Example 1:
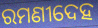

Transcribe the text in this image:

ରମଣୀଦେହ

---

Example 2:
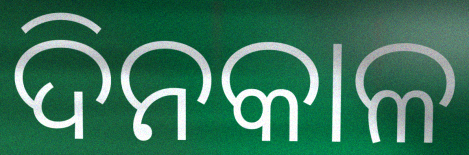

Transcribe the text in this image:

ଦିନକାଳ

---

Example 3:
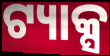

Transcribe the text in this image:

ଟ୍ୟାକ୍ସ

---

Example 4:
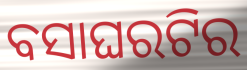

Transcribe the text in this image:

ବସାଘରଟିର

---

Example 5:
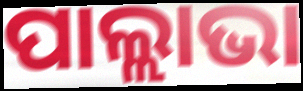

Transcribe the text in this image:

ପାଲ୍ଲାଭା